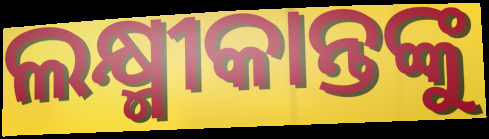
ଲକ୍ଷ୍ମୀକାନ୍ତଙ୍କୁ